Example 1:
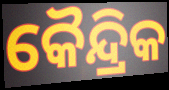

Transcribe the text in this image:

କୈନ୍ଦ୍ରିକ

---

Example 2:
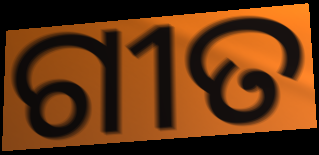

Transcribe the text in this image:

ଗୀତ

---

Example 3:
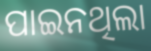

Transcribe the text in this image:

ପାଇନଥିଲା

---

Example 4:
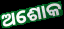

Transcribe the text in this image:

ଅଶୋକ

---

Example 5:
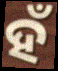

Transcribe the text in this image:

ହଁ